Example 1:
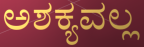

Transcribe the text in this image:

ಅಶಕ್ಯವಲ್ಲ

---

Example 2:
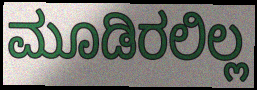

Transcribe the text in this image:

ಮೂಡಿರಲಿಲ್ಲ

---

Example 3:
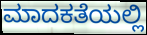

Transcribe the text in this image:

ಮಾದಕತೆಯಲ್ಲಿ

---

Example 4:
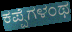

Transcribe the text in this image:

ಕಪ್ಪೆಗಳಂಥ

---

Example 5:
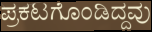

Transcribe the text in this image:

ಪ್ರಕಟಗೊಂಡಿದ್ದವು